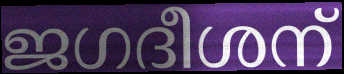
ജഗദീശന്